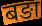
बङा